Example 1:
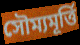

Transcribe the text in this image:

সৌম্যমূর্ত্তি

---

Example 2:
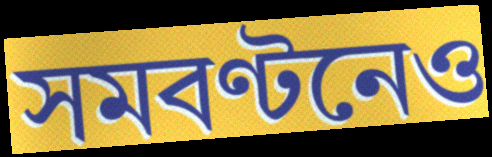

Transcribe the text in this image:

সমবণ্টনেও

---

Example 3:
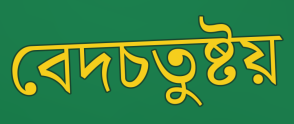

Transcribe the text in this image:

বেদচতুষ্টয়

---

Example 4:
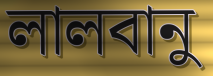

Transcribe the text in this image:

লালবানু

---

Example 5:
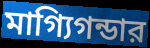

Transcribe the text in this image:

মাগ্যিগন্ডার